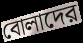
বোলাদের